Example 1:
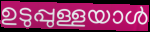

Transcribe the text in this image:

ഉടുപ്പുള്ളയാൾ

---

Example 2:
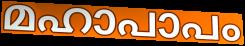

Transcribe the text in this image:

മഹാപാപം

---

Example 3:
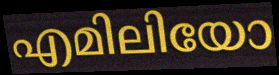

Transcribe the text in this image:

എമിലിയോ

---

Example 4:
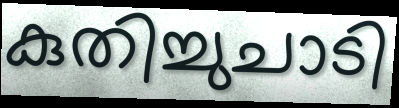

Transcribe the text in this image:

കുതിച്ചുചാടി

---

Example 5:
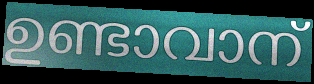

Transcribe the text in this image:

ഉണ്ടാവാന്